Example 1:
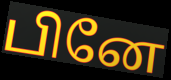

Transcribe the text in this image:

பினே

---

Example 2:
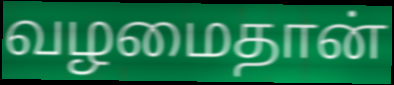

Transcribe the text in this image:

வழமைதான்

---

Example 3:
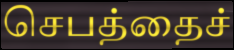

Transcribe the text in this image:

செபத்தைச்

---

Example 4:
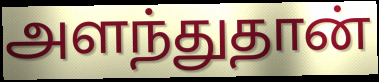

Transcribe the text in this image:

அளந்துதான்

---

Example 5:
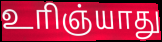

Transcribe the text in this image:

உரிஞ்யாது